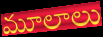
మూలాలు